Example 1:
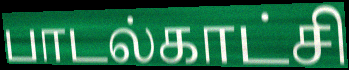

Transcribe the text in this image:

பாடல்காட்சி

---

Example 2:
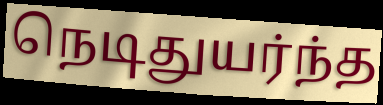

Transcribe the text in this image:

நெடிதுயர்ந்த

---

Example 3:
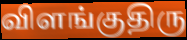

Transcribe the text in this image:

விளங்குதிரு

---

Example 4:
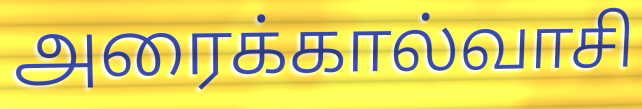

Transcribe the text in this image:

அரைக்கால்வாசி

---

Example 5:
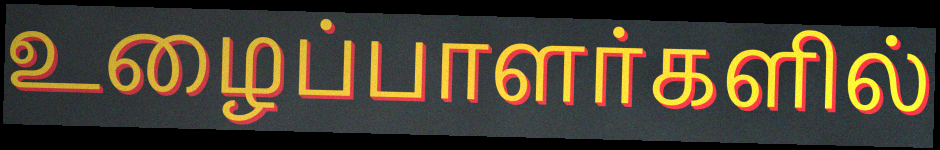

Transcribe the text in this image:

உழைப்பாளர்களில்